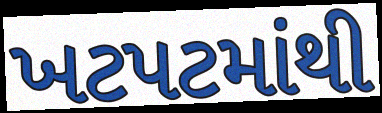
ખટપટમાંથી